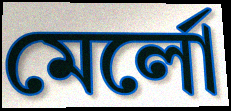
মের্লো